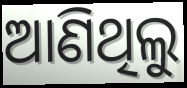
ଆଣିଥିଲୁ